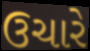
ઉચારે